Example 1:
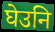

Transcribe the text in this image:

घेउनि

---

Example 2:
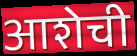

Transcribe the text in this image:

आशेची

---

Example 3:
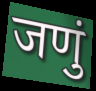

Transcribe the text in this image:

जणुं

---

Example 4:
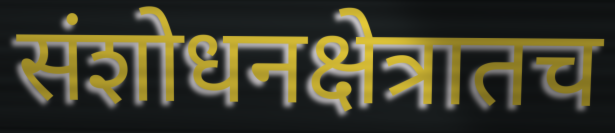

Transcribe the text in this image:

संशोधनक्षेत्रातच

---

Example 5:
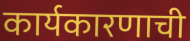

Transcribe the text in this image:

कार्यकारणाची